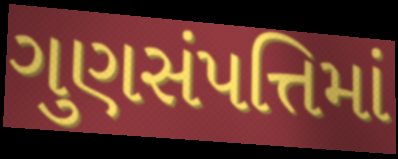
ગુણસંપત્તિમાં